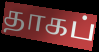
தாகப்